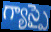
గ్యాస్పై